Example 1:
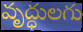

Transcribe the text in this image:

వృద్ధులగు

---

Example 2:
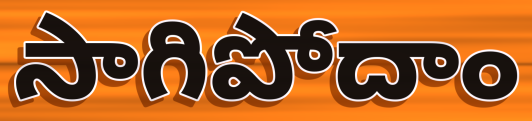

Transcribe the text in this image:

సాగిపోదాం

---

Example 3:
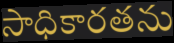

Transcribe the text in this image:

సాధికారతను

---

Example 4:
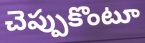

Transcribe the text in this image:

చెప్పుకొంటూ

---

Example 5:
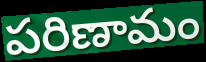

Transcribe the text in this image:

పరిణామం